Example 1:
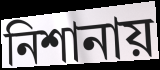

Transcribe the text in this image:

নিশানায়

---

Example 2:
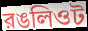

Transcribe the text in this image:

রঙলিওট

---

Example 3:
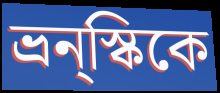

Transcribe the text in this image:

ভ্রন্‌স্কিকে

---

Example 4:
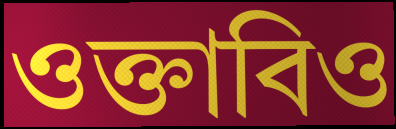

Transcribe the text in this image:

ওক্তাবিও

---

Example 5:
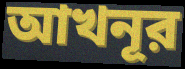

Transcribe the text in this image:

আখনূর